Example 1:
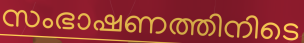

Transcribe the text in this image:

സംഭാഷണത്തിനിടെ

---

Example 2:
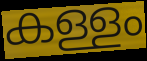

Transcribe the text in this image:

കള്ളം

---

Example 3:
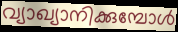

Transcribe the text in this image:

വ്യാഖ്യാനിക്കുമ്പോൾ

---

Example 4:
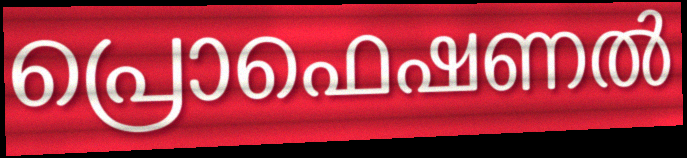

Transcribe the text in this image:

പ്രൊഫെഷണൽ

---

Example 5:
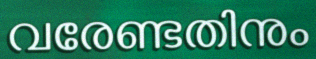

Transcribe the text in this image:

വരേണ്ടതിനും